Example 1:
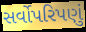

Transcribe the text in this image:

સર્વોપરિપણું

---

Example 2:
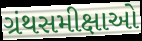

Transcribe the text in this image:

ગ્રંથસમીક્ષાઓ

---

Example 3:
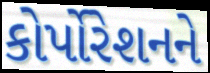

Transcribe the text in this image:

કોર્પોરેશનને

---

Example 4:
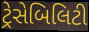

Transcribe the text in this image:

ટ્રેસેબિલિટી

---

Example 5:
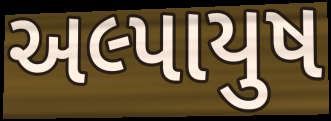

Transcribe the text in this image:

અલ્પાયુષ